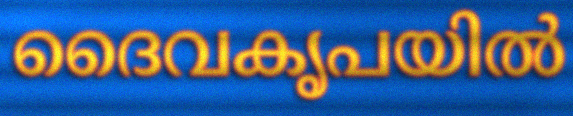
ദൈവകൃപയിൽ